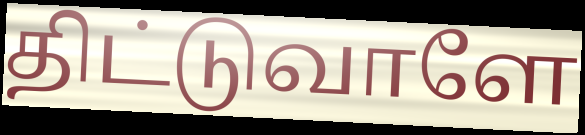
திட்டுவாளே